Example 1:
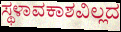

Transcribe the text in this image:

ಸ್ಥಳಾವಕಾಶವಿಲ್ಲದ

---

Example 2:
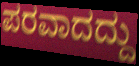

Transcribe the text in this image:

ಪರವಾದದ್ದು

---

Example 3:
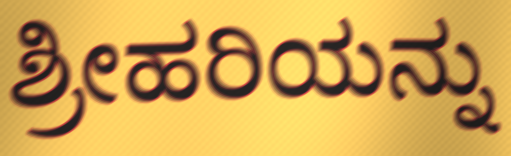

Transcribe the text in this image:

ಶ್ರೀಹರಿಯನ್ನು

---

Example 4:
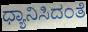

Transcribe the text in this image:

ಧ್ಯಾನಿಸಿದಂತೆ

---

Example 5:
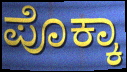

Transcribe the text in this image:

ಪೊಕ್ಕಾ